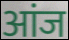
आंज